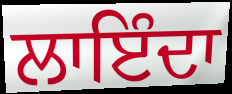
ਲਾਇੰਦਾ